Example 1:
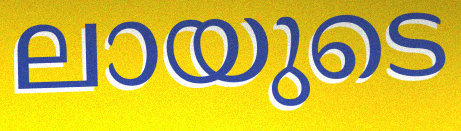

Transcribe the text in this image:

ലായുടെ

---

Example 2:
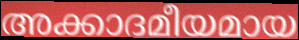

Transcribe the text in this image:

അക്കാദമീയമായ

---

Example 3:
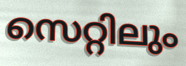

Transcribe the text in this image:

സെറ്റിലും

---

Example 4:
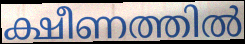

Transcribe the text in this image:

ക്ഷീണത്തിൽ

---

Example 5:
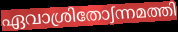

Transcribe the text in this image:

ഏവാശ്രിതോഽന്നമത്തി